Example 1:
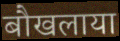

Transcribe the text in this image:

बौखलाया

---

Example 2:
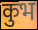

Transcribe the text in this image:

कुभ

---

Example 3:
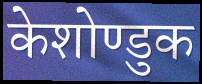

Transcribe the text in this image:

केशोण्डुक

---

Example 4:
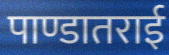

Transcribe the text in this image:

पाण्डातराई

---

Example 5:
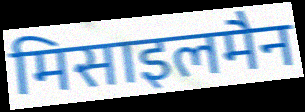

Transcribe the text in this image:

मिसाइलमैन